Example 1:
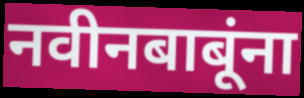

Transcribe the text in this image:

नवीनबाबूंना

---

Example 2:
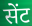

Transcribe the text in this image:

सेंट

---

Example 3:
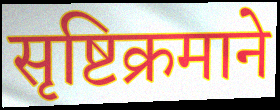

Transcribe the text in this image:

सृष्टिक्रमाने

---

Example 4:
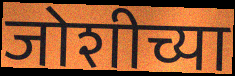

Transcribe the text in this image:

जोशीच्या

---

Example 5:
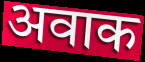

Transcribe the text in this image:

अवाक